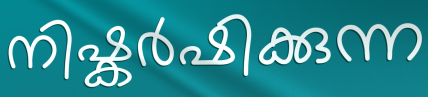
നിഷ്കർഷിക്കുന്ന